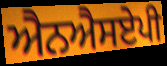
ਐਨਐਸਏਪੀ